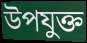
উপযুক্ত